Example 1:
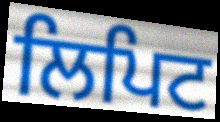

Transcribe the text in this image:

ਲਿਪਿਟ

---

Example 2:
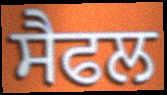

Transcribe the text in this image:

ਸੈਫਲ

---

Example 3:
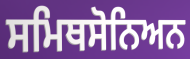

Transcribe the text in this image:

ਸਮਿਥਸੋਨਿਅਨ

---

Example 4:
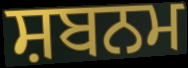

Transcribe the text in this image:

ਸ਼ਬਨਮ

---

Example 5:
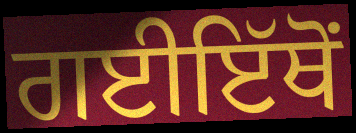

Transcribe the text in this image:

ਗਈਇੱਥੋਂ